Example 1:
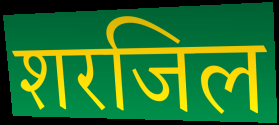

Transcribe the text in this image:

शरजिल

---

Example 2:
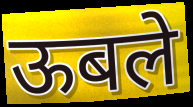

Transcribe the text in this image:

ऊबले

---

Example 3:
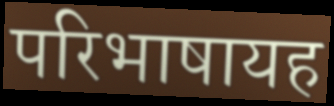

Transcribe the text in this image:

परिभाषायह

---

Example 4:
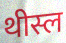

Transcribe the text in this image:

थीस्ल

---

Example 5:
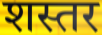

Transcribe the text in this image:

शस्तर